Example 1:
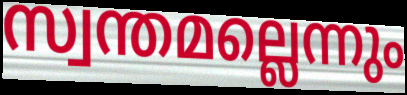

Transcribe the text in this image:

സ്വന്തമല്ലെന്നും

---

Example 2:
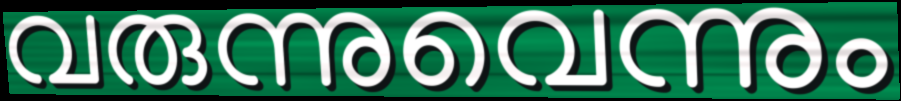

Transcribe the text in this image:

വരുന്നുവെന്നും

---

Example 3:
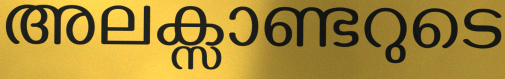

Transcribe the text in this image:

അലക്സാണ്ടറുടെ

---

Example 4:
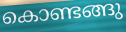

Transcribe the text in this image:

കൊണ്ടങ്ങു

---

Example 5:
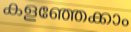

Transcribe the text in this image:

കളഞ്ഞേക്കാം